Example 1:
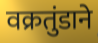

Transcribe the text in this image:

वक्रतुंडाने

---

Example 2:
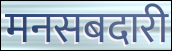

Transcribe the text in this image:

मनसबदारी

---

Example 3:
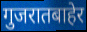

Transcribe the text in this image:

गुजरातबाहेर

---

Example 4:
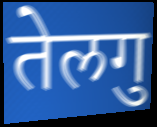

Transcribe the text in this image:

तेलगु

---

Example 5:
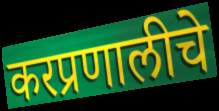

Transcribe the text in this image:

करप्रणालीचे